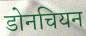
डोनचियन